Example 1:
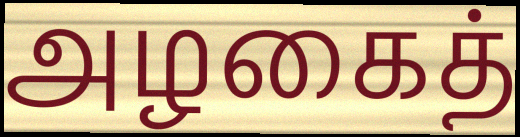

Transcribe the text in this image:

அழகைத்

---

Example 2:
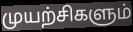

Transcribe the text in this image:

முயற்சிகளும்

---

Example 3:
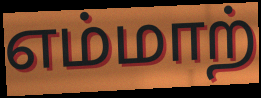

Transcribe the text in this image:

எம்மாற்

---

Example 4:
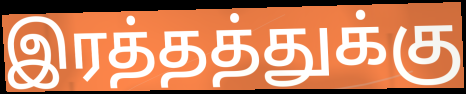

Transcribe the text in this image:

இரத்தத்துக்கு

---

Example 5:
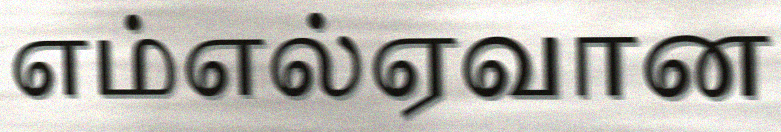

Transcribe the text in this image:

எம்எல்ஏவான